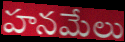
హనమేలు